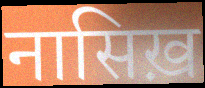
नासिख़